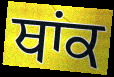
ਥਾਂਕ